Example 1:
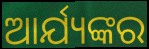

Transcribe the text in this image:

ଆର୍ଯ୍ୟଙ୍କର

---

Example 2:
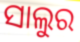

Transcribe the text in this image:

ସାଲୁର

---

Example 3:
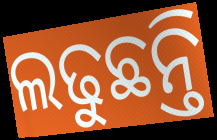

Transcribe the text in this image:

ଲଢୁଛନ୍ତି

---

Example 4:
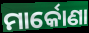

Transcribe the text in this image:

ମାର୍କୋଣା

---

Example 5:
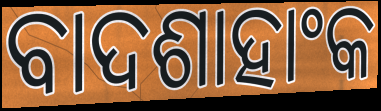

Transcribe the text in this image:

ବାଦଶାହାଂକ